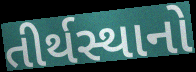
તીર્થસ્થાનો